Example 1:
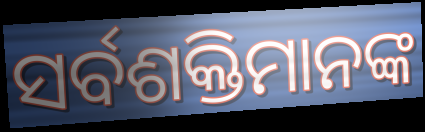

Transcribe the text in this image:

ସର୍ବଶକ୍ତିମାନଙ୍କ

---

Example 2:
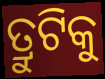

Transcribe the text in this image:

ତ୍ରୁଟିକୁ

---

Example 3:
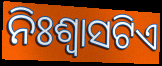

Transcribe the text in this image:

ନିଃଶ୍ୱାସଟିଏ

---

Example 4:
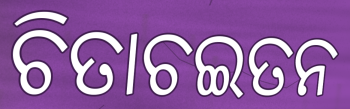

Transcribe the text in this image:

ଚିତାଚଇତନ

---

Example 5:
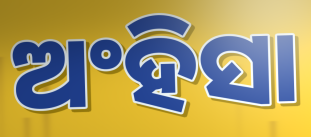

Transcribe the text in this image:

ଅଂହିସା